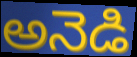
అనెడి